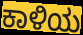
ಕಾಳಿಯ